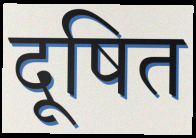
दूषित